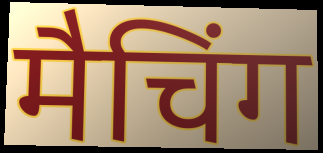
मैचिंग